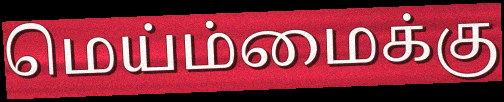
மெய்ம்மைக்கு